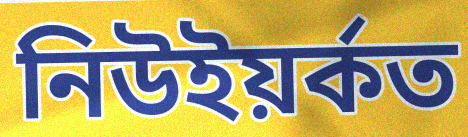
নিউইয়ৰ্কত